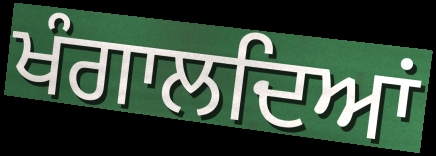
ਖੰਗਾਲਦਿਆਂ